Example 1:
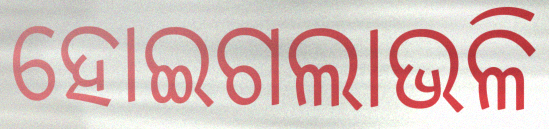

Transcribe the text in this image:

ହୋଇଗଲାଭଳି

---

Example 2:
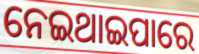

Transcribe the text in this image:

ନେଇଥାଇପାରେ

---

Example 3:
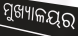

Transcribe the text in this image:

ମୁଖ୍ୟାଳୟର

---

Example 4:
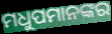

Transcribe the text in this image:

ମଧୁପମାନଙ୍କର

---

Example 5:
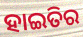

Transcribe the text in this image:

ହାଇତିର